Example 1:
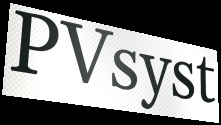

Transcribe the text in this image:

PVsyst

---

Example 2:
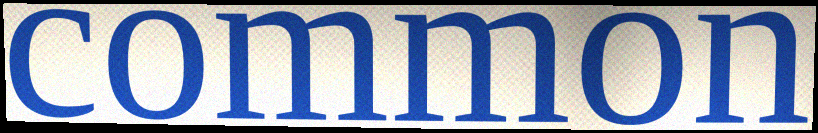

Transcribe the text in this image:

common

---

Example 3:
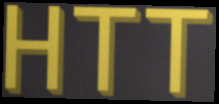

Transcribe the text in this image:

HTT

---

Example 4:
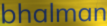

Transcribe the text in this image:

bhalman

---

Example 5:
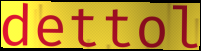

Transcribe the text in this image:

dettol